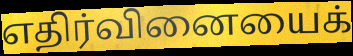
எதிர்வினையைக்